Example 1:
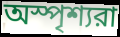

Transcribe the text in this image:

অস্পৃশ্যরা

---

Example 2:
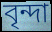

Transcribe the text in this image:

বৃন্দা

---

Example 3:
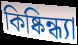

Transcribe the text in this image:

কিষ্কিন্ধ্যা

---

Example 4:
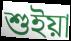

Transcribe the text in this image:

শুইয়া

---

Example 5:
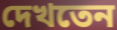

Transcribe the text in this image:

দেখতেন